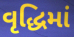
વૃદ્ધિમાં